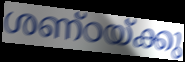
ശണ്ഠയ്ക്കു